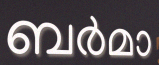
ബർമാ